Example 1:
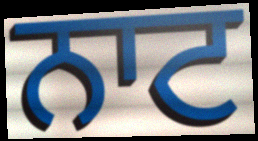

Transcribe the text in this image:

ਨਾਟ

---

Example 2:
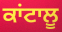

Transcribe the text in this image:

ਕਾਂਟਾਲੂ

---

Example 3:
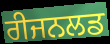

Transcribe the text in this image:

ਰੀਜਨਲਡ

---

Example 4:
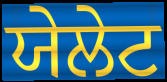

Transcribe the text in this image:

ਯੇਲੇਟ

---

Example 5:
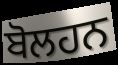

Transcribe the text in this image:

ਬੋਲਹਨ